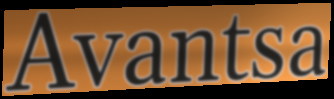
Avantsa